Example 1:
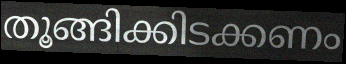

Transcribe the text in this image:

തൂങ്ങിക്കിടക്കണം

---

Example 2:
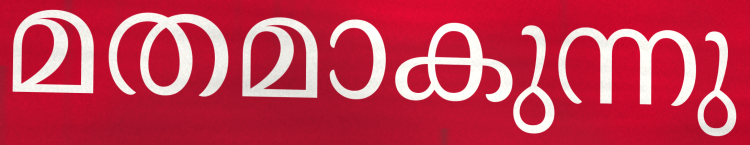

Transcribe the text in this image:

മതമാകുന്നു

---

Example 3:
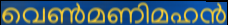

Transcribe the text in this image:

വെൺമണിമഹൻ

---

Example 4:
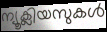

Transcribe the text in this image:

ന്യൂക്ലിയസുകൾ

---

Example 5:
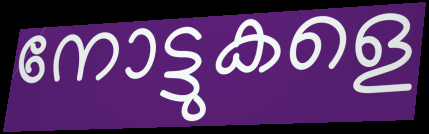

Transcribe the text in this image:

നോട്ടുകളെ